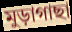
মুড়াগাছা